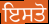
ਇਸਤੋ